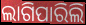
ଲାଗିପାରିଲି